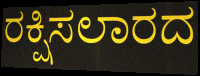
ರಕ್ಷಿಸಲಾರದ